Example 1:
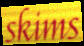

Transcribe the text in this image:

skims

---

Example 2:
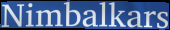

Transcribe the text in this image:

Nimbalkars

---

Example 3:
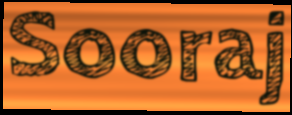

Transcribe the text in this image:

Sooraj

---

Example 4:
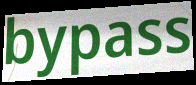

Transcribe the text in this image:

bypass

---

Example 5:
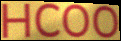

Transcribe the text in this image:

HCOO